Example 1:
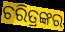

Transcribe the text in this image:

ଚରିତ୍ରଙ୍କର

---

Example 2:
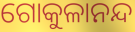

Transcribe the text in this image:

ଗୋକୁଳାନନ୍ଦ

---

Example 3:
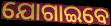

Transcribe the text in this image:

ଯୋଗାଇବେ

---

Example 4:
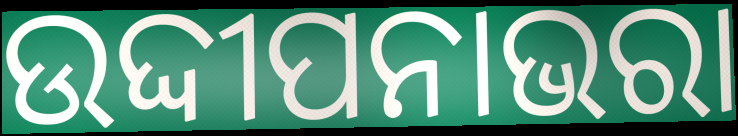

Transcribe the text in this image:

ଉଦ୍ଦୀପନାଭରା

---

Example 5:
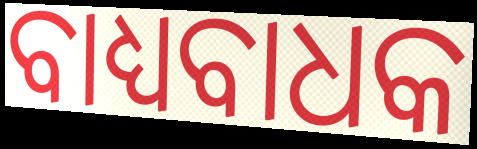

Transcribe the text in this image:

ବାଧ୍ୟବାଧକ